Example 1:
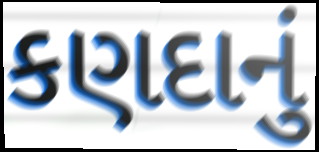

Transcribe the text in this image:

કણદાનું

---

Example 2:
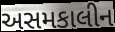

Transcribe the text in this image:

અસમકાલીન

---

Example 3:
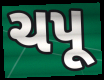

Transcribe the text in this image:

ચપૂ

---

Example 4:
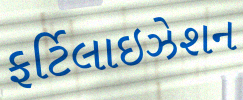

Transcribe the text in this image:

ફર્ટિલાઇઝેશન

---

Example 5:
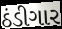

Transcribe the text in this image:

ઠંડીગાર